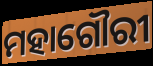
ମହାଗୌରୀ